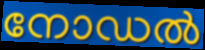
നോഡൽ